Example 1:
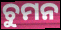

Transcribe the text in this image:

ଚୁମନ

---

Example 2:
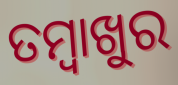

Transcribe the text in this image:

ତମ୍ବାଖୁର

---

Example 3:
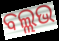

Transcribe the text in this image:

ବଲ୍ଲଭ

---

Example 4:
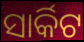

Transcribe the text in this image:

ସାର୍କିଟ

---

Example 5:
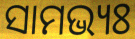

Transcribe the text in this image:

ସାମଭ୍ୟଃ